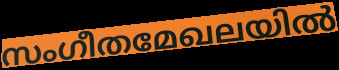
സംഗീതമേഖലയിൽ